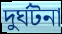
দুর্ঘটনা